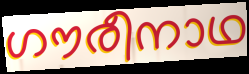
ഗൗരീനാഥ